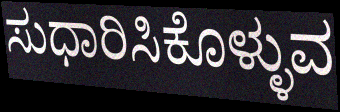
ಸುಧಾರಿಸಿಕೊಳ್ಳುವ